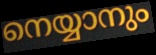
നെയ്യാനും